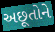
અછૂતોને